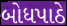
બોધપાઠે